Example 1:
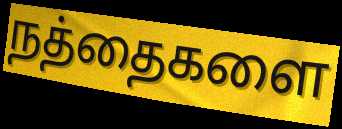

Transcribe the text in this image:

நத்தைகளை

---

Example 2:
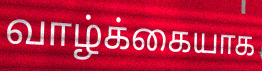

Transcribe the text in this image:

வாழ்க்கையாக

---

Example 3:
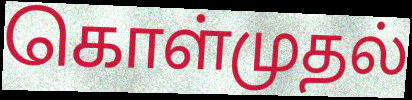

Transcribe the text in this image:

கொள்முதல்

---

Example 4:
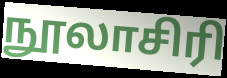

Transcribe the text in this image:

நூலாசிரி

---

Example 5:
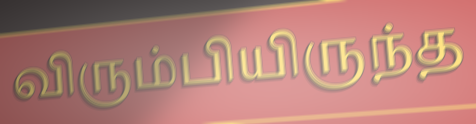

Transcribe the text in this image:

விரும்பியிருந்த